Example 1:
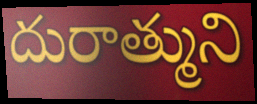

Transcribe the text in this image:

దురాత్ముని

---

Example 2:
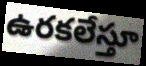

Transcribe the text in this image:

ఉరకలేస్తూ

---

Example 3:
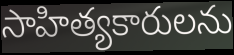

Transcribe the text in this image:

సాహిత్యకారులను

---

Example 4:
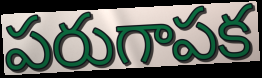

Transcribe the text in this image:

పరుగాపక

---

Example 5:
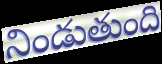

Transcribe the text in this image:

నిండుతుంది